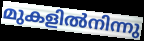
മുകളിൽനിന്നു